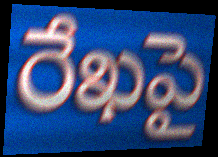
రేఖపై